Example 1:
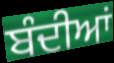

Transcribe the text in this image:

ਬੰਦੀਆਂ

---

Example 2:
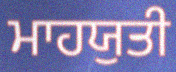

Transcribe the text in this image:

ਮਾਹਯੁਤੀ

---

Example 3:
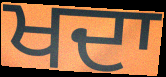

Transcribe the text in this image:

ਖਦਾ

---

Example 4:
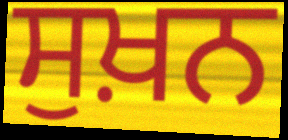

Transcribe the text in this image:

ਸੁਖ਼ਨ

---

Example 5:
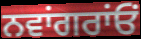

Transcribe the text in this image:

ਨਵਾਂਗਰਾਂਓਂ